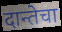
दान्तेचा